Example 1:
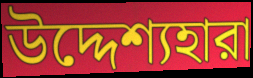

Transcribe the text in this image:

উদ্দেশ্যহারা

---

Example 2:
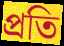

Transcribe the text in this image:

প্রতি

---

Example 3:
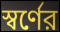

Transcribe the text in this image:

স্বর্ণের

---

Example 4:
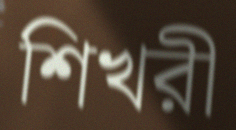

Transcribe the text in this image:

শিখরী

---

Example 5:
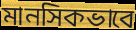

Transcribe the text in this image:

মানসিকভাবে